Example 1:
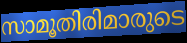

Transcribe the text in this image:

സാമൂതിരിമാരുടെ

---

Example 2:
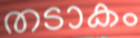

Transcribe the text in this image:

തടാകം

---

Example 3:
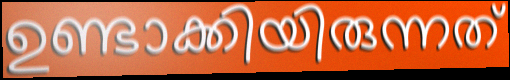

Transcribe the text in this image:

ഉണ്ടാക്കിയിരുന്നത്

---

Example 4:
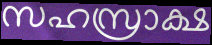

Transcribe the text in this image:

സഹസ്രാക്ഷ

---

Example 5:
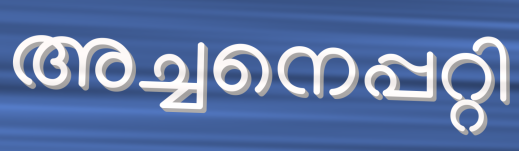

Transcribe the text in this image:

അച്ചനെപ്പറ്റി